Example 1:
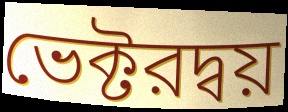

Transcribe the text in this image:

ভেক্টরদ্বয়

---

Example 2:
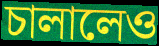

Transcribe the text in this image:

চালালেও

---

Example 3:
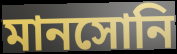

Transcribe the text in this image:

মানসোনি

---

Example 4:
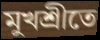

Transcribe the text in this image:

মুখশ্রীতে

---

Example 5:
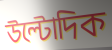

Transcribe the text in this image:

উল্টোদিক